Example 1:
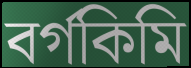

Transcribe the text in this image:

বৰ্গকিমি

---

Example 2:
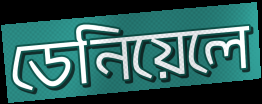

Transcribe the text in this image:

ডেনিয়েলে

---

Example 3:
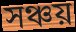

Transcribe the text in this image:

সঞ্চয়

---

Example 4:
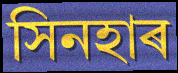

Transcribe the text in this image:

সিনহাৰ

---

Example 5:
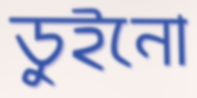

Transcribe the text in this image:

ডুইনো